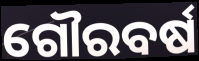
ଗୌରବର୍ଷ